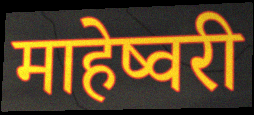
माहेष्वरी